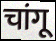
चांगू